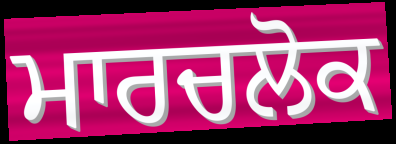
ਮਾਰਚਲੋਕ